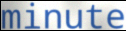
minute